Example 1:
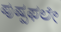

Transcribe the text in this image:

ಪುಷ್ಪಫಲೇ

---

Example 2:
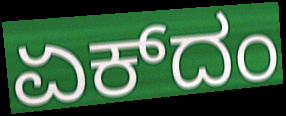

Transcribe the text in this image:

ಏಕ್‌ದಂ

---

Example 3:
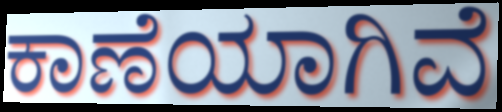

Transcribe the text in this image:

ಕಾಣೆಯಾಗಿವೆ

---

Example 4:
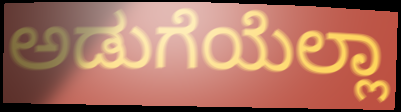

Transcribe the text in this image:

ಅಡುಗೆಯೆಲ್ಲಾ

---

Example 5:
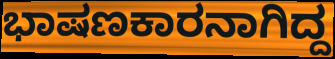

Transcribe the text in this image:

ಭಾಷಣಕಾರನಾಗಿದ್ದ